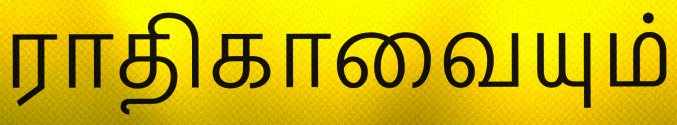
ராதிகாவையும்